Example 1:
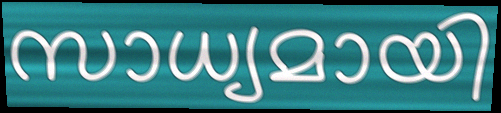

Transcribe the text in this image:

സാധ്യമായി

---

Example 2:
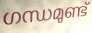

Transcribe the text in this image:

ഗന്ധമുണ്ട്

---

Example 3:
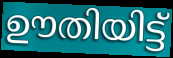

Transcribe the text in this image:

ഊതിയിട്ട്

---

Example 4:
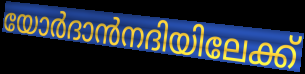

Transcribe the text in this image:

യോർദാൻനദിയിലേക്ക്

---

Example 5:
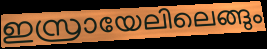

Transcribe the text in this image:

ഇസ്രായേലിലെങ്ങും